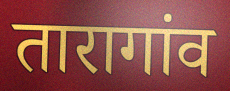
तारागांव